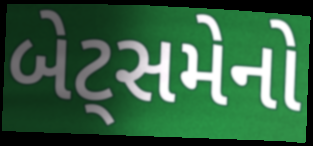
બેટ્સમેનો